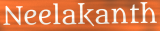
Neelakanth